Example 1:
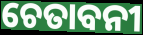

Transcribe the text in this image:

ଚେତାବନୀ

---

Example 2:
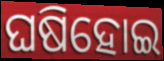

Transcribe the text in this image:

ଘଷିହୋଇ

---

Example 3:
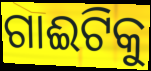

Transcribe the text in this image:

ଗାଈଟିକୁ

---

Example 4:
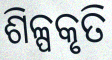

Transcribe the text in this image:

ଶିଳ୍ପକୃତି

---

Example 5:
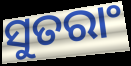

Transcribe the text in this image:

ସୁତରାଂ